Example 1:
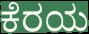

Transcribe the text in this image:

ಕೆರಯ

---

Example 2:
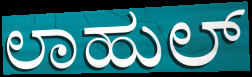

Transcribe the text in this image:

ಲಾಹುಲ್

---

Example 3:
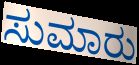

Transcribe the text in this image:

ಸುಮಾರು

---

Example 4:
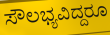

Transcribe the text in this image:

ಸೌಲಭ್ಯವಿದ್ದರೂ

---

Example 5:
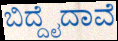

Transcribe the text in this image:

ಬಿದ್ದೈದಾವೆ